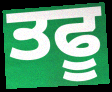
ਤਫੂ